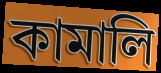
কামালি